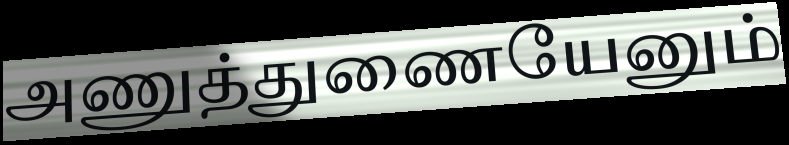
அணுத்துணையேனும்